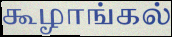
கூழாங்கல்